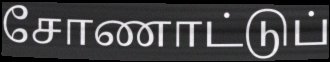
சோணாட்டுப்